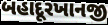
બહાદૂરખાનજી